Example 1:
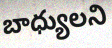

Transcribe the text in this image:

బాధ్యులని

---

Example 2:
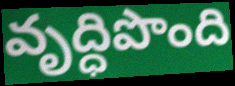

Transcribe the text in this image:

వృద్ధిపొంది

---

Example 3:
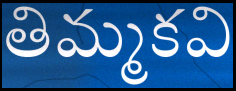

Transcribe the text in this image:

తిమ్మకవి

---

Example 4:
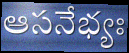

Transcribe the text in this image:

ఆసనేభ్యః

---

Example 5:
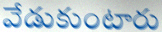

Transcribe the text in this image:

వేడుకుంటారు